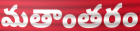
మతాంతరం